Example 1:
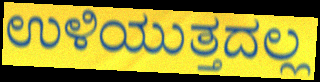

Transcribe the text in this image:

ಉಳಿಯುತ್ತದಲ್ಲ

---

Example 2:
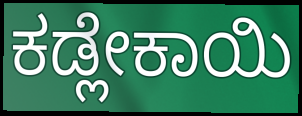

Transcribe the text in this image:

ಕಡ್ಲೇಕಾಯಿ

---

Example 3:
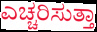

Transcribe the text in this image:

ಎಚ್ಚರಿಸುತ್ತಾ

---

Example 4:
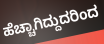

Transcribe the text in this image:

ಹೆಚ್ಚಾಗಿದ್ದುದರಿಂದ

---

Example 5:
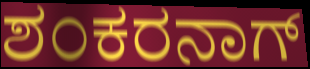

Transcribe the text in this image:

ಶಂಕರನಾಗ್